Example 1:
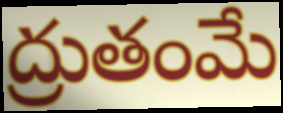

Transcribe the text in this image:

ద్రుతంమే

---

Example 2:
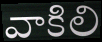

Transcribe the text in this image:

వాకిలి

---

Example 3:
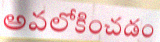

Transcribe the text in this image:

అవలోకించడం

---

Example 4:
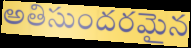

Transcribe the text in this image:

అతిసుందరమైన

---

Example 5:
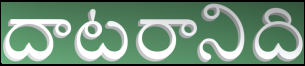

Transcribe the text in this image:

దాటరానిది